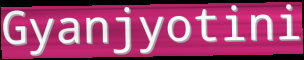
Gyanjyotini